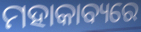
ମହାକାବ୍ୟରେ